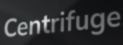
Centrifuge